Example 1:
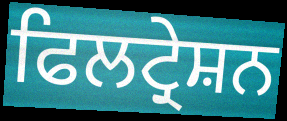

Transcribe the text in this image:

ਫਿਲਟ੍ਰੇਸ਼ਨ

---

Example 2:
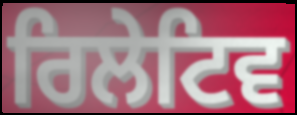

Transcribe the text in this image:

ਰਿਲੇਟਿਵ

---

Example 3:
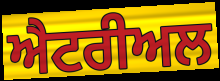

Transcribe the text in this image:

ਐਟਰੀਅਲ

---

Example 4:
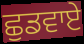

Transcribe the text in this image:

ਛੁਡਵਾਏ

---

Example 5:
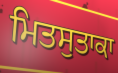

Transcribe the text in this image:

ਮਿਤਸੁਤਾਕਾ